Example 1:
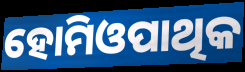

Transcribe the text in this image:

ହୋମିଓପାଥିକ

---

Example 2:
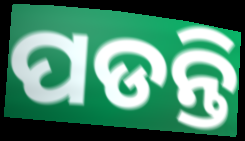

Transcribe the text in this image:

ପଡନ୍ତି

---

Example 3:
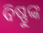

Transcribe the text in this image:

ବିଷ୍ଣୁଙ୍କ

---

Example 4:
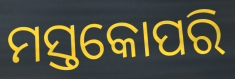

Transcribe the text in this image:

ମସ୍ତକୋପରି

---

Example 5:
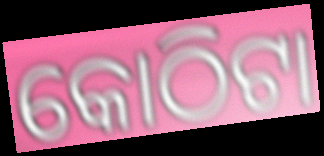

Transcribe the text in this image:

କୋଠିଟା